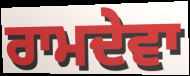
ਰਾਮਦੇਵਾ